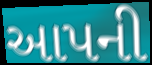
આપની